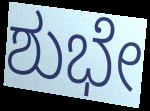
ಶುಭೇ